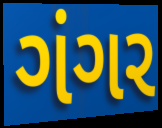
ગંગર